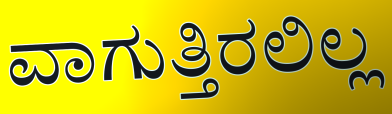
ವಾಗುತ್ತಿರಲಿಲ್ಲ